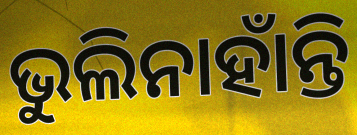
ଭୁଲିନାହାଁନ୍ତି